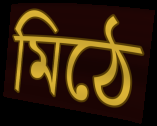
মিঠে